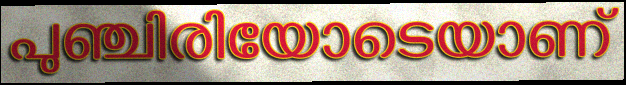
പുഞ്ചിരിയോടെയാണ്